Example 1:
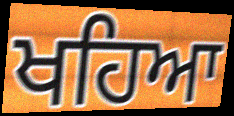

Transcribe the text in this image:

ਖਹਿਆ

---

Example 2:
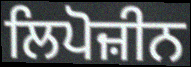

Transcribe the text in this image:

ਲਿਪੋਜ਼ੀਨ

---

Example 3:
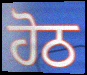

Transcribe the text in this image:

ਹੋਠ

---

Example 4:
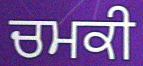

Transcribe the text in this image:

ਚਮਕੀ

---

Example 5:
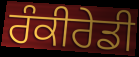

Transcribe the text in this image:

ਰੰਕੀਰੇਡੀ